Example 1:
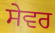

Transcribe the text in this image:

ਸੇਵਰ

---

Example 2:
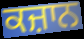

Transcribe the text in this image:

ਕਜ਼ਾਨ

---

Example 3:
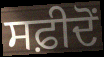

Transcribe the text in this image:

ਸਫ਼ੀਦੋਂ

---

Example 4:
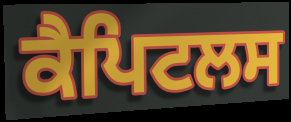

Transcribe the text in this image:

ਕੈਪਿਟਲਸ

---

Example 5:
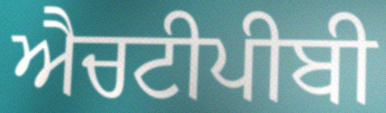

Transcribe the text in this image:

ਐਚਟੀਪੀਬੀ